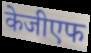
केजीएफ